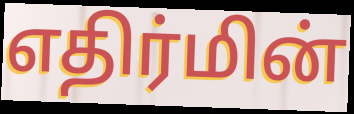
எதிர்மின்